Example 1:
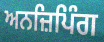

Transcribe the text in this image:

ਅਨਜ਼ਿਪਿੰਗ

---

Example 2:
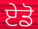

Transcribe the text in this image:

ਏਡੋ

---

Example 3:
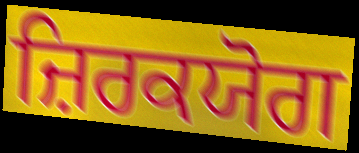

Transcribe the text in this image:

ਜ਼ਿਰਕਯੋਗ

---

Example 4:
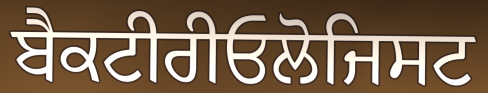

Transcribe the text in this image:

ਬੈਕਟੀਰੀਓਲੋਜਿਸਟ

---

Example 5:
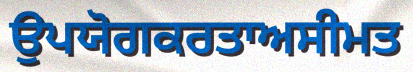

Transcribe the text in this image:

ਉਪਯੋਗਕਰਤਾਅਸੀਮਤ